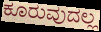
ಕೂರುವುದಲ್ಲ